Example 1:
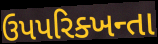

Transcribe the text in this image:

ઉપપરિક્ખન્તા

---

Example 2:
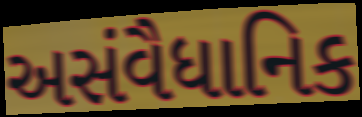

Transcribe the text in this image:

અસંવૈધાનિક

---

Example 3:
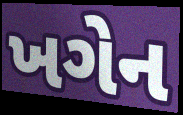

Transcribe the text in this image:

ખગેન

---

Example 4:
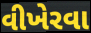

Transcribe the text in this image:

વીખેરવા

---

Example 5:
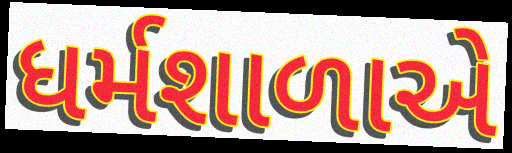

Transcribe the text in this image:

ધર્મશાળાએ